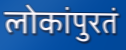
लोकांपुरतं